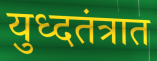
युध्दतंत्रात